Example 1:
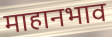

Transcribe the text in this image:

माहानभाव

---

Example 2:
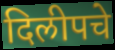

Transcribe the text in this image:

दिलीपचे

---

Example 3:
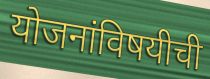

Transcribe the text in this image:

योजनांविषयीची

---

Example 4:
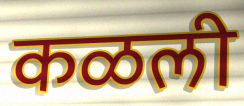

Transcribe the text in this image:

कळली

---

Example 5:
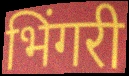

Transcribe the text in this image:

भिंगरी